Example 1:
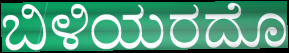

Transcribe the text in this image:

ಬಿಳಿಯರದೊ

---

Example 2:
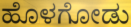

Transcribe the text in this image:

ಹೊಳಗೋಡು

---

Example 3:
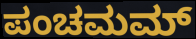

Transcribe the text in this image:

ಪಂಚಮಮ್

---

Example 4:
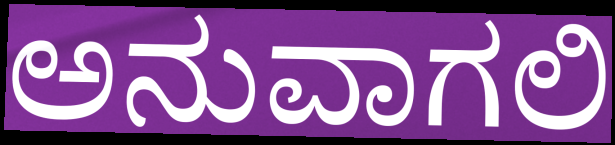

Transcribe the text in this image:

ಅನುವಾಗಲಿ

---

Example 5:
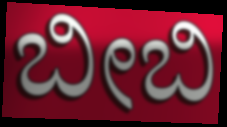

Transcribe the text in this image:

ಬೀಬಿ